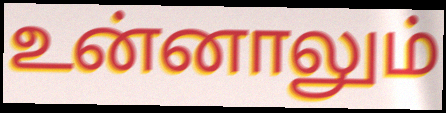
உன்னாலும்